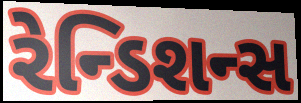
રેન્ડિશન્સ